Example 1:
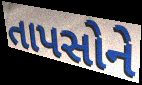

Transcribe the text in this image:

તાપસોને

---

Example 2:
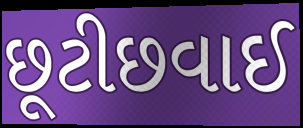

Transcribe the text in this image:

છૂટીછવાઈ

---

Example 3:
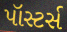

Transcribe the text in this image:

પૉસ્ટર્સ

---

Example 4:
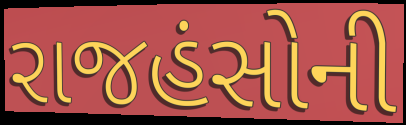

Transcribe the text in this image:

રાજહંસોની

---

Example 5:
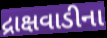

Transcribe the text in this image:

દ્રાક્ષવાડીના